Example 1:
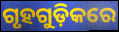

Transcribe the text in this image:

ଗୃହଗୁଡ଼ିକରେ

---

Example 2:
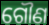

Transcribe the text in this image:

ଗୌଣ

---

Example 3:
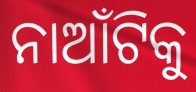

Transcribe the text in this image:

ନାଆଁଟିକୁ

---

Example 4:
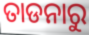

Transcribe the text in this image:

ତାଡନାରୁ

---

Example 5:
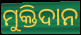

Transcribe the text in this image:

ମୁକ୍ତିଦାନ